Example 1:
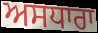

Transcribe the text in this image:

ਅਸਧਾਰਾ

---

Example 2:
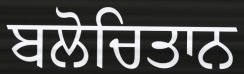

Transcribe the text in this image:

ਬਲੋਚਿਤਾਨ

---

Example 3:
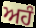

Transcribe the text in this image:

ਅਹੰ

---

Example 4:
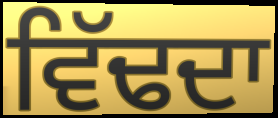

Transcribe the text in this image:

ਵਿੱਢਦਾ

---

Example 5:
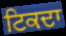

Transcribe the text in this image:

ਟਿਕਦਾ